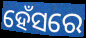
ହେଁସରେ